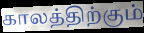
காலத்திற்கும்